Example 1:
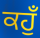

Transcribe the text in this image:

ਕਹੁਁ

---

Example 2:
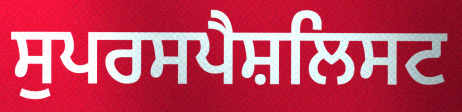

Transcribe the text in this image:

ਸੁਪਰਸਪੈਸ਼ਲਿਸਟ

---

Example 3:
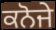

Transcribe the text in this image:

ਕਨੋਜੇ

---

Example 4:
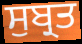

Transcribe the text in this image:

ਸੁਬ੍ਰਤ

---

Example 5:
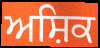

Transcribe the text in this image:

ਅਸ਼ਿਕ